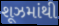
શૂઝમાંથી